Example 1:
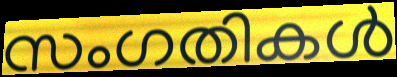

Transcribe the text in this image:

സംഗതികൾ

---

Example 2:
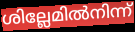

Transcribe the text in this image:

ശില്ലേമിൽനിന്ന്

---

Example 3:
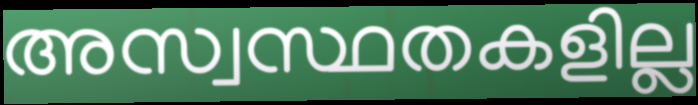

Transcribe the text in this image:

അസ്വസ്ഥതകളില്ല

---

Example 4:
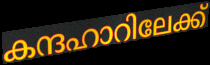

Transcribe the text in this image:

കന്ദഹാറിലേക്ക്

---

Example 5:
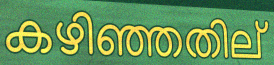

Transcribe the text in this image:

കഴിഞ്ഞതില്